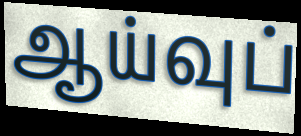
ஆய்வுப்